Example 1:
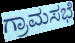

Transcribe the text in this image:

ಗ್ರಾಮಸಭೆ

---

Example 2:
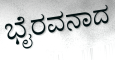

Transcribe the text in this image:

ಭೈರವನಾದ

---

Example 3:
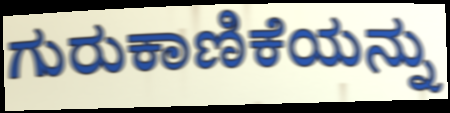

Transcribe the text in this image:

ಗುರುಕಾಣಿಕೆಯನ್ನು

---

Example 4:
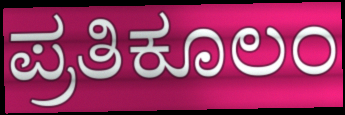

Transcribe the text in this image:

ಪ್ರತಿಕೂಲಂ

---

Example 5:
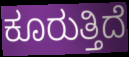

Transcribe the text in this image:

ಕೂರುತ್ತಿದೆ